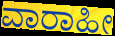
ವಾರಾಹೀ